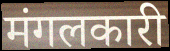
मंगलकारी